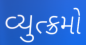
વ્યુત્ક્રમો